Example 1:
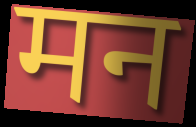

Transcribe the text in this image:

मन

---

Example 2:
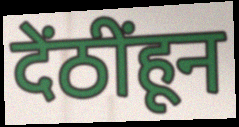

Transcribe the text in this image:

देंठींहून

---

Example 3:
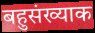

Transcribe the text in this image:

बहुसंख्याक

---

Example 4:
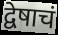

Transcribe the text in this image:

द्वेषाचं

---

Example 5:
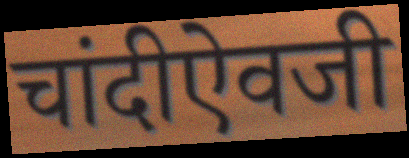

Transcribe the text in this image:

चांदीऐवजी